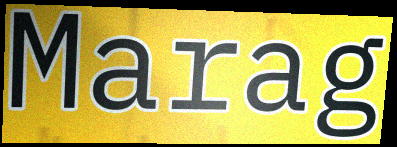
Marag